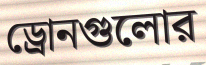
ড্রোনগুলোর